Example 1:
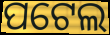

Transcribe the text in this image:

ପଟେଲ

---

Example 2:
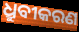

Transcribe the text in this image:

ଧ୍ରୁବୀକରଣ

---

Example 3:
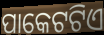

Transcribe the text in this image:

ପାକେଟଟିଏ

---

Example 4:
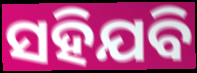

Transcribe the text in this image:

ସହିଯବି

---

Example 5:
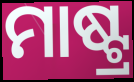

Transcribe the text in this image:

ମାଷ୍ଟ୍ର